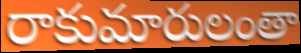
రాకుమారులంతా